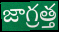
జాగ్రత్త